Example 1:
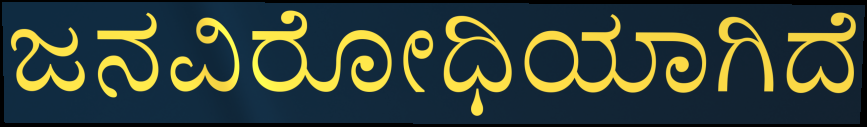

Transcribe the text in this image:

ಜನವಿರೋಧಿಯಾಗಿದೆ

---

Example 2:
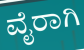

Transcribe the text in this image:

ವೈರಾಗಿ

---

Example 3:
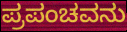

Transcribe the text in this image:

ಪ್ರಪಂಚವನು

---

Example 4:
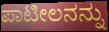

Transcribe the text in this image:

ಪಾಟೀಲನನ್ನು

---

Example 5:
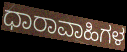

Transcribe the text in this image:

ಧಾರಾವಾಹಿಗಳ